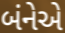
બંનેએ